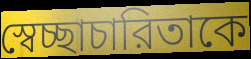
স্বেচ্ছাচারিতাকে